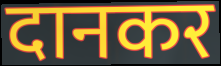
दानकर